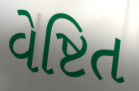
વેષ્ટિત